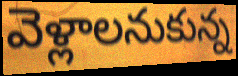
వెళ్లాలనుకున్న